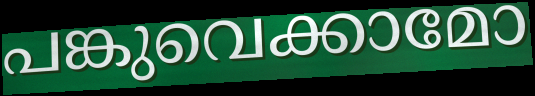
പങ്കുവെക്കാമോ